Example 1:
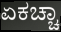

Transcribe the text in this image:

ಏಕಚ್ಚಾ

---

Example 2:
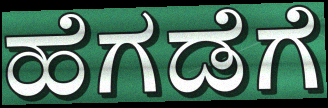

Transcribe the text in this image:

ಹೆಗಡೆಗೆ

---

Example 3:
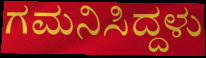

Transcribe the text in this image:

ಗಮನಿಸಿದ್ದಳು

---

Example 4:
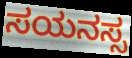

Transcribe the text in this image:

ಸಯನಸ್ಸ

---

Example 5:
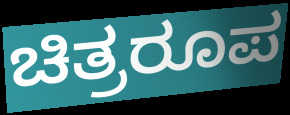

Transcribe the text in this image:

ಚಿತ್ರರೂಪ